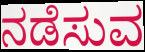
ನಡೆಸುವ